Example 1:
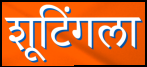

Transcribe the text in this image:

शूटिंगला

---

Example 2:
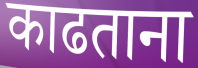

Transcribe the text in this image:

काढताना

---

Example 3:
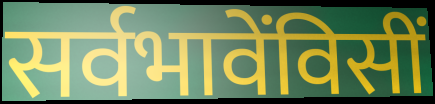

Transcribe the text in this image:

सर्वभावेंविसीं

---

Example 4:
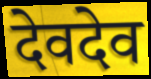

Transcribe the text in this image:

देवदेव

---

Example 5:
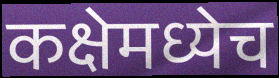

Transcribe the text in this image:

कक्षेमध्येच